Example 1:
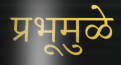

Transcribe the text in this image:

प्रभूमुळे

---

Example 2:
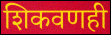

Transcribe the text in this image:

शिकवणही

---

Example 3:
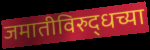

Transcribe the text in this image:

जमातीविरुद्धच्या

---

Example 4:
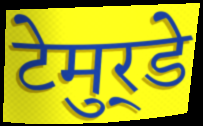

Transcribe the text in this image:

टेमुर्डे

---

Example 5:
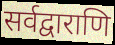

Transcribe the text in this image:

सर्वद्वाराणि